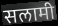
सलामी